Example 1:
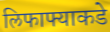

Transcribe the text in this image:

लिफाफ्याकडे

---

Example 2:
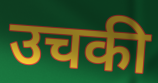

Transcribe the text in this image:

उचकी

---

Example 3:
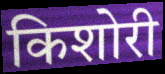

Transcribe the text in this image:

किशोरी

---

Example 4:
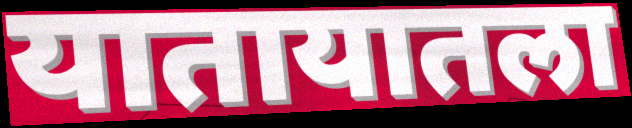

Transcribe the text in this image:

यातायातला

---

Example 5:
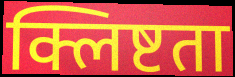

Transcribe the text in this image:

क्लिष्टता